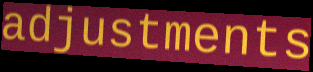
adjustments